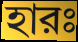
হারঃ